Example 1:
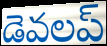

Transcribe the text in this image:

డెవలప్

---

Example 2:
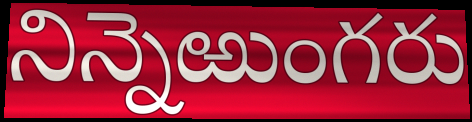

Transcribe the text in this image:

నిన్నెఱుంగరు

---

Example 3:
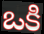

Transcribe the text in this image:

ఒకి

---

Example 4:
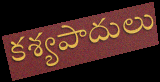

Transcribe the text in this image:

కశ్యపాదులు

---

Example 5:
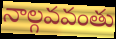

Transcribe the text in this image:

నాల్గవవంతు